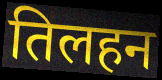
तिलहन